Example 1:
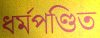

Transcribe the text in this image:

ধর্মপণ্ডিত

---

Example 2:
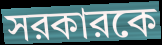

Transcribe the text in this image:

সরকারকে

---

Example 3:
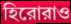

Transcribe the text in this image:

হিরোরাও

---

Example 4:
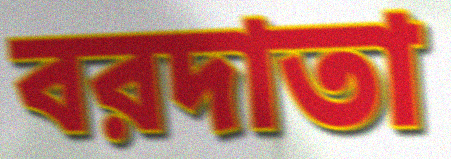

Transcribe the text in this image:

বরদাতা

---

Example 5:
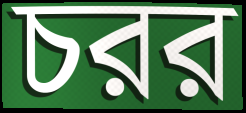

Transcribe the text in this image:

চরর